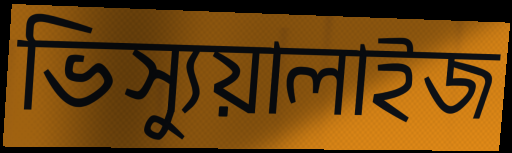
ভিস্যুয়ালাইজ